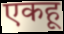
एकहू